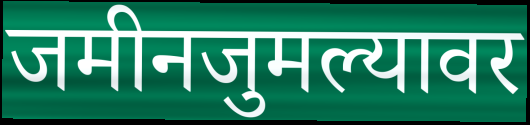
जमीनजुमल्यावर